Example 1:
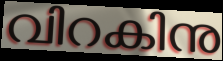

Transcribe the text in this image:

വിറകിനു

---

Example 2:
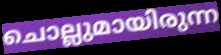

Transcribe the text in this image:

ചൊല്ലുമായിരുന്ന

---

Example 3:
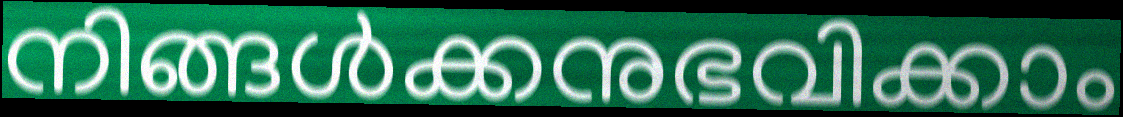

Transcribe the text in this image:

നിങ്ങൾക്കനുഭവിക്കാം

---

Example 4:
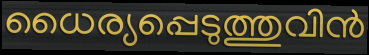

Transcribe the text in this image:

ധൈര്യപ്പെടുത്തുവിൻ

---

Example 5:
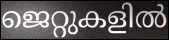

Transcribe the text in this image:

ജെറ്റുകളിൽ